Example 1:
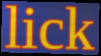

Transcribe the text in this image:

lick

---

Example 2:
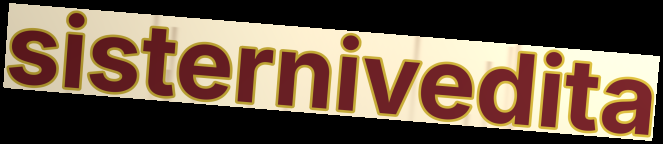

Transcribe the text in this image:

sisternivedita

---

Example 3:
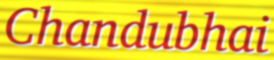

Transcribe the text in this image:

Chandubhai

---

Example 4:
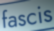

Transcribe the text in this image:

fascis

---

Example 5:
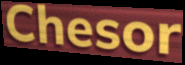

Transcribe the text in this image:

Chesor